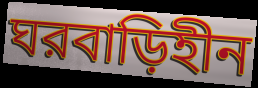
ঘরবাড়িহীন